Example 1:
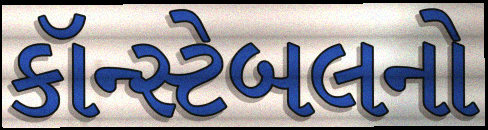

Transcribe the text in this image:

કૉન્સ્ટેબલનો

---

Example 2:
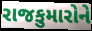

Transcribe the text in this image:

રાજકુમારોને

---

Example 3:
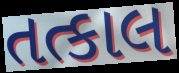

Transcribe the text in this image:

તત્કાલ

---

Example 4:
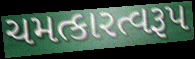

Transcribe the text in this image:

ચમત્કારત્વરૂપ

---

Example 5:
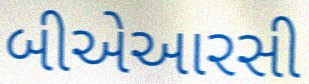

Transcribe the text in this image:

બીએઆરસી